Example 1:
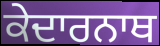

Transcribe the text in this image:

ਕੇਦਾਰਨਾਥ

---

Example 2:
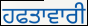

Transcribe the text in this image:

ਹਫਤਾਵਾਰੀ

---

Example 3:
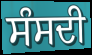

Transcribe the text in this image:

ਸੰਸਦੀ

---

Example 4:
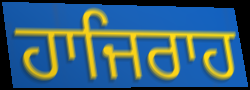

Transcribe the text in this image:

ਹਾਜਿਰਾਹ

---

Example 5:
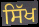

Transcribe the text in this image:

ਸਿੱਖ